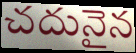
చదునైన